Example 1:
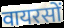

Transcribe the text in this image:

वायरसों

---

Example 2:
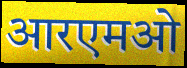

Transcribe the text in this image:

आरएमओ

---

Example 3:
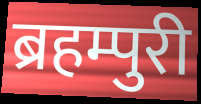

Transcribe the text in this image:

ब्रहम्पुरी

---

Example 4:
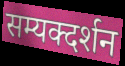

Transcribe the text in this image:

सम्यक्दर्शन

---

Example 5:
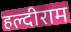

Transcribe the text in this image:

हल्दीराम